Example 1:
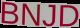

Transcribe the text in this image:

BNJD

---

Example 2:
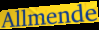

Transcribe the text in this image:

Allmende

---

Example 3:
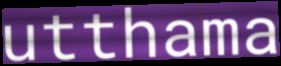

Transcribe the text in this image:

utthama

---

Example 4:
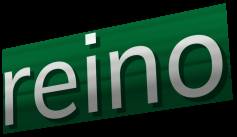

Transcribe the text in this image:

reino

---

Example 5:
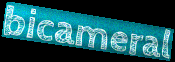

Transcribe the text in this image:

bicameral